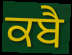
ਕਬੈ